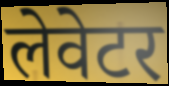
लेवेटर